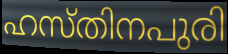
ഹസ്തിനപുരി